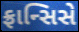
ફ્રાન્સિસે